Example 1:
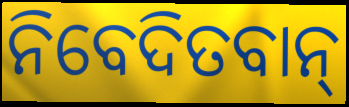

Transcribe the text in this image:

ନିବେଦିତବାନ୍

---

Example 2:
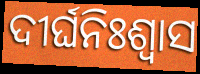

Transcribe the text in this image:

ଦୀର୍ଘନିଃଶ୍ବାସ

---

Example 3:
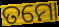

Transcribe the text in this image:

ତମୋ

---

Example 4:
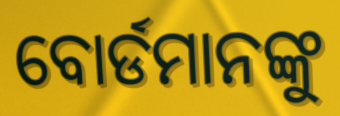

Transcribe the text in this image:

ବୋର୍ଡମାନଙ୍କୁ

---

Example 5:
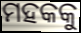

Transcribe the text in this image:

ମହକକୁ